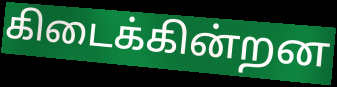
கிடைக்கின்றன